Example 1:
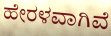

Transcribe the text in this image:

ಹೇರಳವಾಗಿವೆ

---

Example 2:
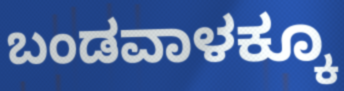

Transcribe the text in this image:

ಬಂಡವಾಳಕ್ಕೂ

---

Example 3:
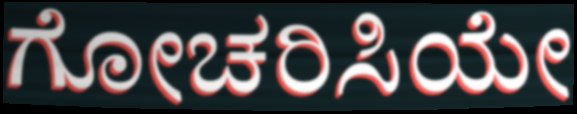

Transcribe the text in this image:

ಗೋಚರಿಸಿಯೇ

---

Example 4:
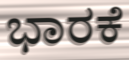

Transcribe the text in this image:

ಭಾರಕೆ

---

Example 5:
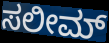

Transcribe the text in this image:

ಸಲೀಮ್